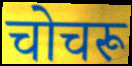
चोचरू